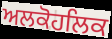
ਅਲਕੋਹਲਿਕ